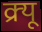
क्र्यू